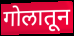
गोलातून